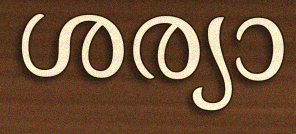
ശര്യാ